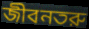
জীবনতরু